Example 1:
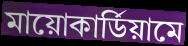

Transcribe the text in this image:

মায়োকার্ডিয়ামে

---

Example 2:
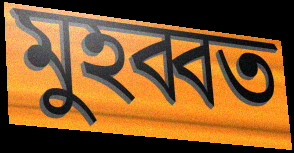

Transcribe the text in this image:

মুহব্বত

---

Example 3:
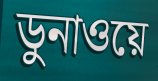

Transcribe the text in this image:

ডুনাওয়ে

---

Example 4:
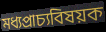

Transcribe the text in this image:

মধ্যপ্রাচ্যবিষয়ক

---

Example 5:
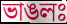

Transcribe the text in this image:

ভাঙলঃ